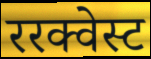
ररक्वेस्ट